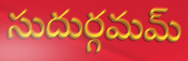
సుదుర్గమమ్